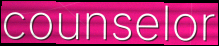
counselor